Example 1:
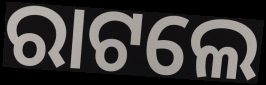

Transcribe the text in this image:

ରାଟଲେ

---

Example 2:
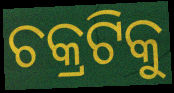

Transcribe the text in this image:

ଚକ୍ରଟିକୁ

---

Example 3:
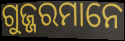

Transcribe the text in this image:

ଗୁଜ୍ଜରମାନେ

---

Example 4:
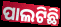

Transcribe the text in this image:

ପାଲଟିଛି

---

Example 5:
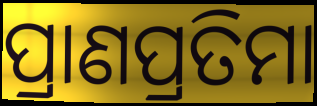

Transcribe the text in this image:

ପ୍ରାଣପ୍ରତିମା